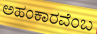
ಅಹಂಕಾರವೆಂಬ